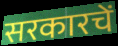
सरकारचें